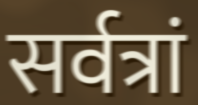
सर्वत्रां